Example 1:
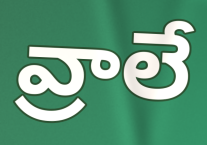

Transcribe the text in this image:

వ్రాలే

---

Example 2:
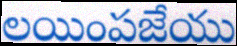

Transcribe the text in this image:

లయింపజేయు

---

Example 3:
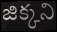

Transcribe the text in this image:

జిక్కని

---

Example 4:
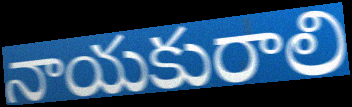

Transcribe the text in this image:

నాయకురాలి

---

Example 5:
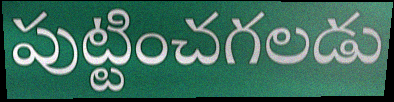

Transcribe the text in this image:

పుట్టించగలడు